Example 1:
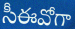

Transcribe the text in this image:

సీఈవోగా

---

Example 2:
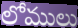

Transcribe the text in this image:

లోములు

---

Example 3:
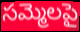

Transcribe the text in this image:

సమ్మెలపై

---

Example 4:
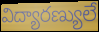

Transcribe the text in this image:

విద్యారణ్యులే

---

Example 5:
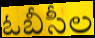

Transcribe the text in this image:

ఓబీసీల